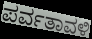
ಪರ್ವತಾವಳಿ